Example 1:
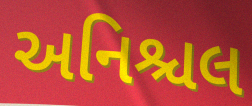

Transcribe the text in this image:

અનિશ્ચલ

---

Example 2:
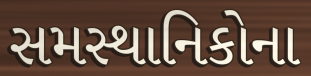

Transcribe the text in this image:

સમસ્થાનિકોના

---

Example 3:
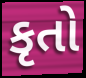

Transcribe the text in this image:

કૃતો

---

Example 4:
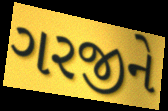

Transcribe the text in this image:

ગરજીને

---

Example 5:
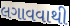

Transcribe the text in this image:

લગાવવાથી